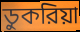
ডুকরিয়া